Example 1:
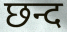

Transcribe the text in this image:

छन्‍द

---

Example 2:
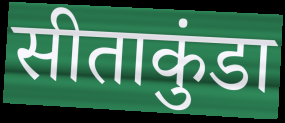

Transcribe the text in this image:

सीताकुंडा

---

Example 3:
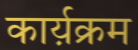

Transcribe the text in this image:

कार्य़क्रम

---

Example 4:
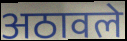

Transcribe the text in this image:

अठावले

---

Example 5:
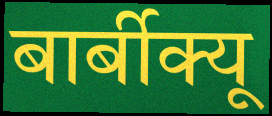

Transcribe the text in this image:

बार्बीक्यू